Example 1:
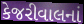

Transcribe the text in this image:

કેજરીવાલનાં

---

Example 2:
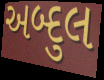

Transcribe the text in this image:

અબ્દુલ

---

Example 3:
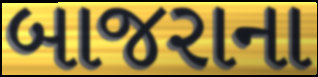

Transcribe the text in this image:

બાજરાના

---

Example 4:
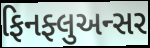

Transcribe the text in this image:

ફિનફ્લુઅન્સર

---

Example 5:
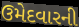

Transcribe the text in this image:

ઉમેદવારની